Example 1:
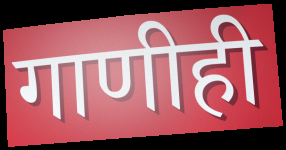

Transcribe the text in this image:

गाणीही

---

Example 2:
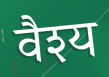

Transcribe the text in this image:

वैश्य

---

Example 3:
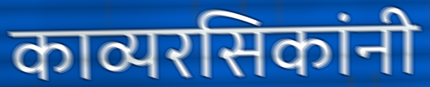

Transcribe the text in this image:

काव्यरसिकांनी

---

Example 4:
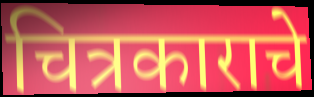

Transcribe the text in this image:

चित्रकाराचे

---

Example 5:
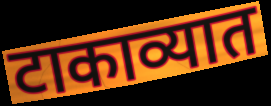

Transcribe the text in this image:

टाकाव्यात